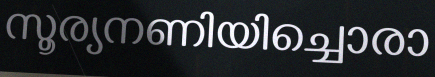
സൂര്യനണിയിച്ചൊരാ